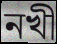
নখী